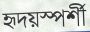
হৃদয়স্পর্শী